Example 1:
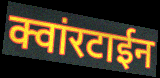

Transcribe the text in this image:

क्वांरटाईन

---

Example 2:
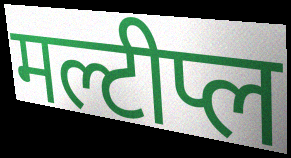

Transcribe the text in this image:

मल्टीप्ल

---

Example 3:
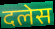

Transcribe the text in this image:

दलेस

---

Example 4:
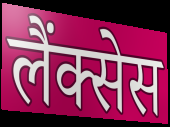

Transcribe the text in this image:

लैंक्सेस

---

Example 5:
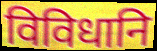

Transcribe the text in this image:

विविधानि